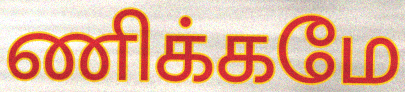
ணிக்கமே